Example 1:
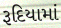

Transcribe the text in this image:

રૂદિયામાં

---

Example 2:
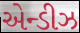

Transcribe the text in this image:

એન્ડીઝ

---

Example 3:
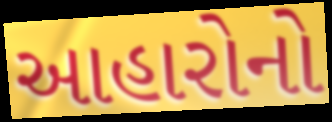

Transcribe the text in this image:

આહારોનો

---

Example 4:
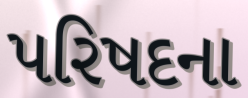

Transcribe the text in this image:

પરિષદના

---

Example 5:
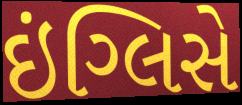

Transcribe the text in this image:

ઇંગ્લિસે